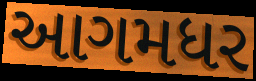
આગમધર